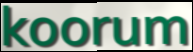
koorum